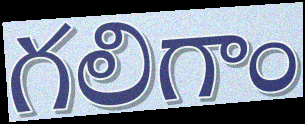
గలిగాం